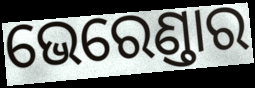
ଭେରେଣ୍ଡାର